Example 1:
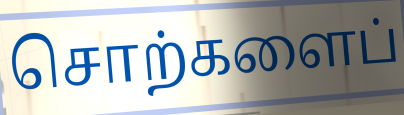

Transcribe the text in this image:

சொற்களைப்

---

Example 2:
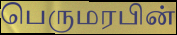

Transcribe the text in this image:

பெருமரபின்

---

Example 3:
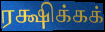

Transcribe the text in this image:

ரக்ஷிக்கக்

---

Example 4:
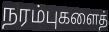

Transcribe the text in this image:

நரம்புகளைத்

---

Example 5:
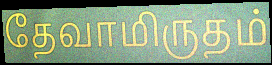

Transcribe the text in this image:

தேவாமிருதம்